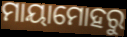
ମାୟାମୋହରୁ